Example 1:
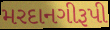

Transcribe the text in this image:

મરદાનગીરૂપી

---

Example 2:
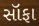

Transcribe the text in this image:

સૉફા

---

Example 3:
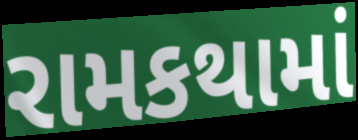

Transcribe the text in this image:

રામકથામાં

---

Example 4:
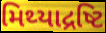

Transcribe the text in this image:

મિથ્યાદ્રષ્ટિ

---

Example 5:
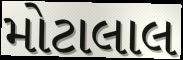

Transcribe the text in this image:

મોટાલાલ